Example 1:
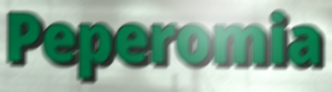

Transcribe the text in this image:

Peperomia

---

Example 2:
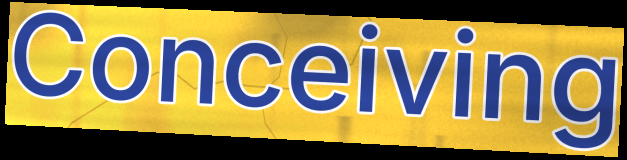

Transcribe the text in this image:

Conceiving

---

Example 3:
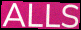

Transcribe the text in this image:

ALLS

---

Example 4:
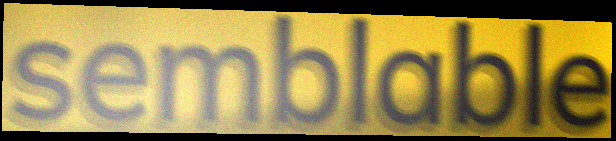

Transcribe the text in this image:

semblable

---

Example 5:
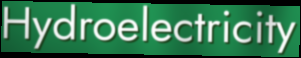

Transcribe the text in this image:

Hydroelectricity